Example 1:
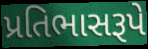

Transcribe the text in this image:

પ્રતિભાસરૂપે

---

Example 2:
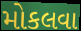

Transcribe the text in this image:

મોકલવા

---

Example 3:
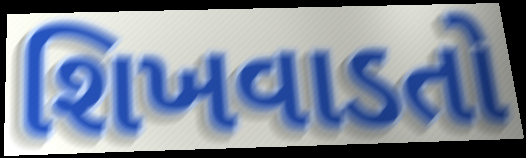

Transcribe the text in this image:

શિખવાડતો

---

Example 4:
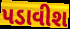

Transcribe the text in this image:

પડાવીશ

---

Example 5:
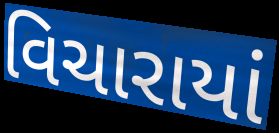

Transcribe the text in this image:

વિચારાયાં